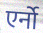
एर्नो